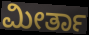
ಮೀರ್ತಾ